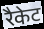
रैकेट